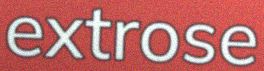
extrose